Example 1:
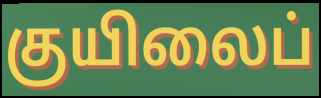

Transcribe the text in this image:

குயிலைப்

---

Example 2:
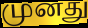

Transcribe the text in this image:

முனது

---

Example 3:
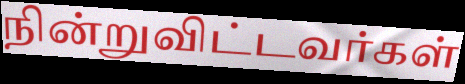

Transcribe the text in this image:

நின்றுவிட்டவர்கள்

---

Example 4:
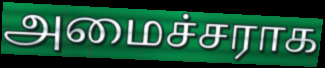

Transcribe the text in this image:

அமைச்சராக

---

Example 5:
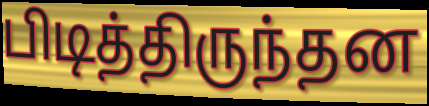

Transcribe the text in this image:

பிடித்திருந்தன